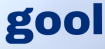
gool